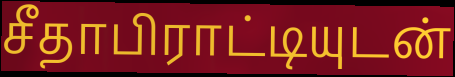
சீதாபிராட்டியுடன்